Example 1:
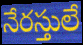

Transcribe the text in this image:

నేరస్తులే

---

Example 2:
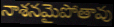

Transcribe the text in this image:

నాశనమైపోతావు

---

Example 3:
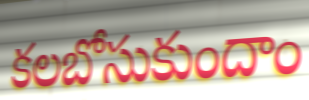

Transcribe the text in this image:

కలబోసుకుందాం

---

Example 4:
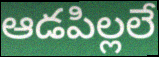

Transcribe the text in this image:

ఆడపిల్లలే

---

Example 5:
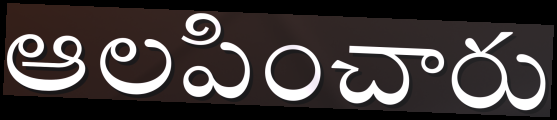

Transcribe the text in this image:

ఆలపించారు